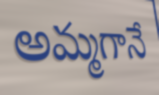
అమ్మగానే